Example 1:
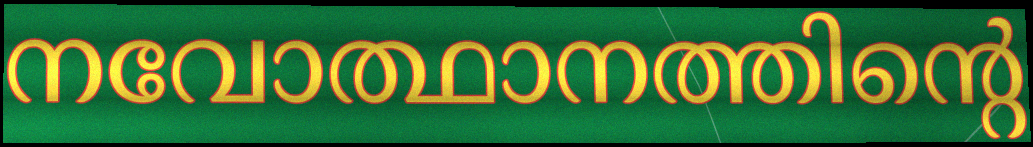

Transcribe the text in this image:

നവോത്ഥാനത്തിന്റെ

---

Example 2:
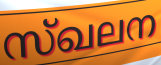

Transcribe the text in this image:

സ്ഖലന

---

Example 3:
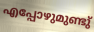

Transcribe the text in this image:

എപ്പോഴുമുണ്ടു്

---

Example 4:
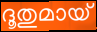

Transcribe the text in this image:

ദൂതുമായ്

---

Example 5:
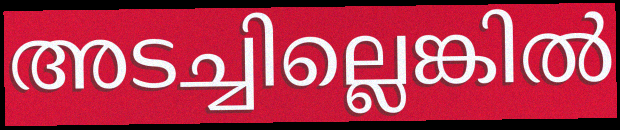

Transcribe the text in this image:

അടച്ചില്ലെങ്കിൽ